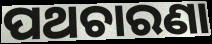
ପଥଚାରଣା